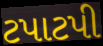
ટપાટપી